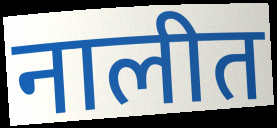
नालीत